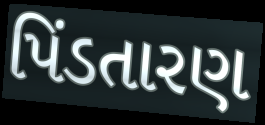
પિંડતારણ